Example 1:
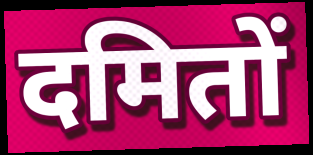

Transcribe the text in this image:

दमितों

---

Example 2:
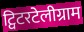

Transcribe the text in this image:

ट्विटरटेलीग्राम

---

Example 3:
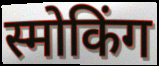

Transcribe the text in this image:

स्मोकिंग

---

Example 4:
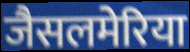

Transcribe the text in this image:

जैसलमेरिया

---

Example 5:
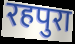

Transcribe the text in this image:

रहपुरा